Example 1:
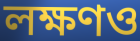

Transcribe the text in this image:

লক্ষণও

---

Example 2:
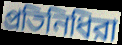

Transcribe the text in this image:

প্রতিনিধিরা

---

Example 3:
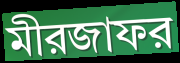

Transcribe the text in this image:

মীরজাফর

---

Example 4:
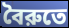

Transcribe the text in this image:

বৈরুতে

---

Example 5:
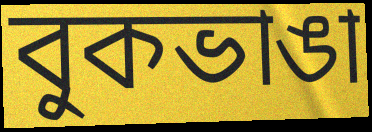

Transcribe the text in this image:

বুকভাঙা